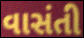
વાસંતી